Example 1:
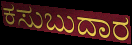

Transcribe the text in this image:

ಕಸುಬುದಾರ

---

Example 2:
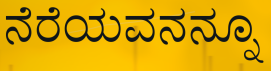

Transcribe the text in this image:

ನೆರೆಯವನನ್ನೂ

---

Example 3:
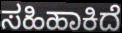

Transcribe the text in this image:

ಸಹಿಹಾಕಿದೆ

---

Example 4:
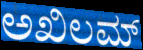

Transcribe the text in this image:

ಅಖಿಲಮ್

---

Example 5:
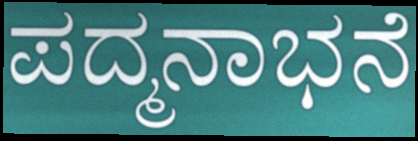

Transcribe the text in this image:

ಪದ್ಮನಾಭನೆ